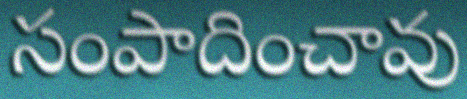
సంపాదించావు